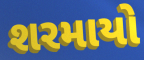
શરમાયો